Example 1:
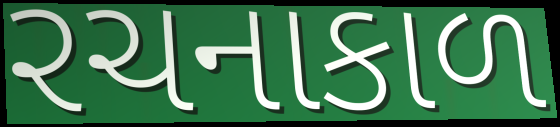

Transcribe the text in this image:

રચનાકાળ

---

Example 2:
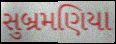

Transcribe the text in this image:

સુબ્રમણિયા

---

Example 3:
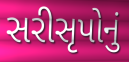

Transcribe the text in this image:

સરીસૃપોનું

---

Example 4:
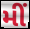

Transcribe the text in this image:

મીં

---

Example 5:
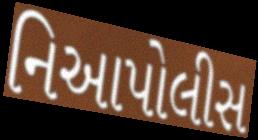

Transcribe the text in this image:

નિઆપોલીસ